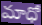
మాధో